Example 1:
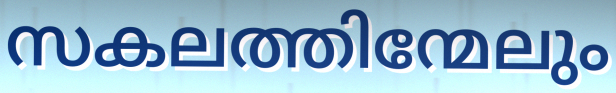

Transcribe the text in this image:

സകലത്തിന്മേലും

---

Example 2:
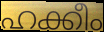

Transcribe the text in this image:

ഹക്കീം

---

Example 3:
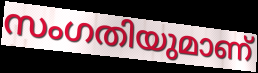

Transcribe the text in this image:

സംഗതിയുമാണ്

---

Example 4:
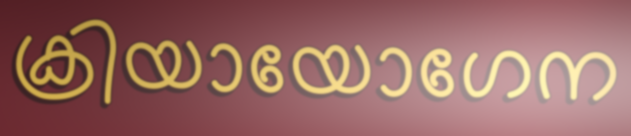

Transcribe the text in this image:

ക്രിയായോഗേന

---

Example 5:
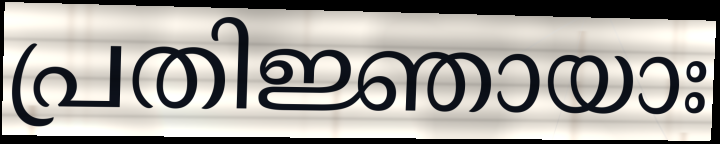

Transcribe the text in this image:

പ്രതിജ്ഞായാഃ